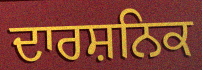
ਦਾਰਸ਼ਨਿਕ